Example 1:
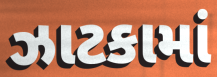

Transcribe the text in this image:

ઝાટકામાં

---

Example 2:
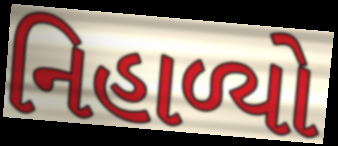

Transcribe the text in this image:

નિહાળ્યો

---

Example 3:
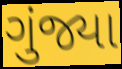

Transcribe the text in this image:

ગુંજ્યા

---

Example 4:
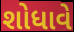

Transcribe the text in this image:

શોધાવે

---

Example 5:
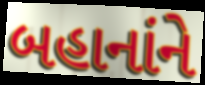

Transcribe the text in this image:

બહાનાંને